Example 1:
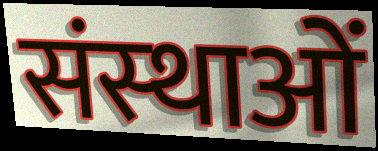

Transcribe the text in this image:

संस्‍थाओं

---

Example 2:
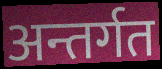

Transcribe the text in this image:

अन्‍तर्गत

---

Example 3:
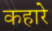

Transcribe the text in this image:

कहारे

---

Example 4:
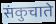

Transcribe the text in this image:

संकुचाते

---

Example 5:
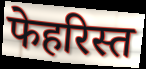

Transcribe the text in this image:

फेहरिस्त